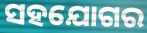
ସହଯୋଗର